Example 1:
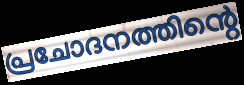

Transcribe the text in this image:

പ്രചോദനത്തിന്റെ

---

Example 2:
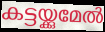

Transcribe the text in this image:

കട്ടയ്ക്കുമേൽ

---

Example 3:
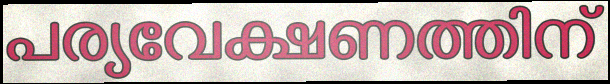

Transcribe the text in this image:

പര്യവേക്ഷണത്തിന്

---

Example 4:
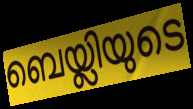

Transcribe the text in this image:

ബെയ്ലിയുടെ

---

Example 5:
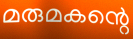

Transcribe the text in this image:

മരുമകന്റെ